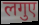
लगुए